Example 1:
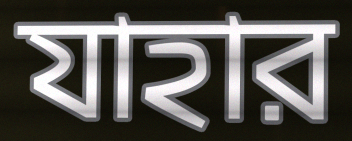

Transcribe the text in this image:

যাহার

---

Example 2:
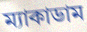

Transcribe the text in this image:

ম্যাকাডাম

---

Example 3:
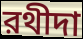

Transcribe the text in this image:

রথীদা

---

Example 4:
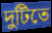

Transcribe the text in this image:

দুটিতে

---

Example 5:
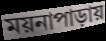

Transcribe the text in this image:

ময়নাপাড়ায়